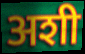
अशी